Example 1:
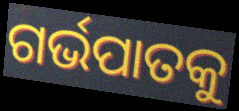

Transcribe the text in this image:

ଗର୍ଭପାତକୁ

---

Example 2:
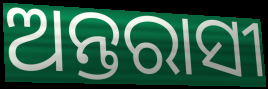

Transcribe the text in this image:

ଅନ୍ତରାସୀ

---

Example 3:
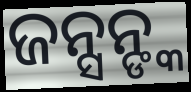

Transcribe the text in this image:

ଜନ୍ସନ୍ଙ୍କ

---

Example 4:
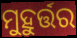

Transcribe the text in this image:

ମୁହୁର୍ତ୍ତର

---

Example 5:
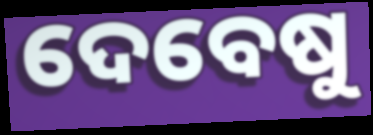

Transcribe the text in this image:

ଦେବେଷୁ